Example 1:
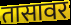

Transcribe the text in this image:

तासावर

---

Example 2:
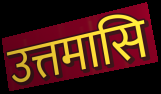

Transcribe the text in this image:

उत्तमासि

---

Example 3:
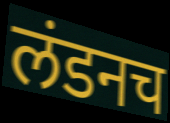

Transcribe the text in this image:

लंडनच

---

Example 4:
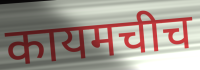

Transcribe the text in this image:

कायमचीच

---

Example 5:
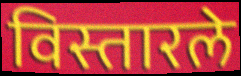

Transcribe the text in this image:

विस्तारले